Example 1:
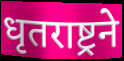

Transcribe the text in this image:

धृतराष्ट्रने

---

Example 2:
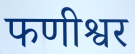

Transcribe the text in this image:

फणीश्वर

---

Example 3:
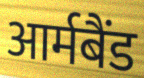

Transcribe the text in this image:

आर्मबैंड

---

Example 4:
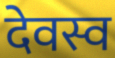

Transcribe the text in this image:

देवस्व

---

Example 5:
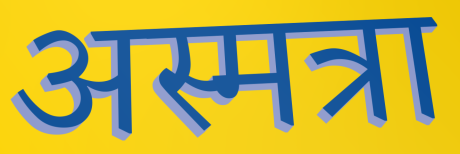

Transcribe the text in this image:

अस्मत्रा